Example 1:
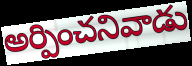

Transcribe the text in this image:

అర్పించనివాడు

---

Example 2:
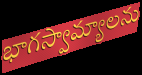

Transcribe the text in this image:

భాగస్వామ్యాలను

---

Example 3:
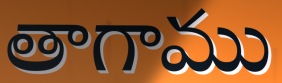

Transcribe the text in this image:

తాగాము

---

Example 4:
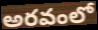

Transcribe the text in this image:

అరవంలో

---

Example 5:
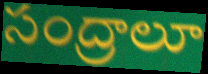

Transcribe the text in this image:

సంద్రాలూ